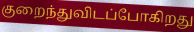
குறைந்துவிடப்போகிறது